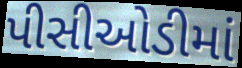
પીસીઓડીમાં